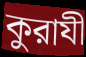
কুরাযী